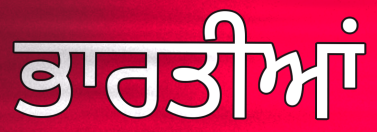
ਭਾਰਤੀਆਂ